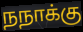
நநாக்கு